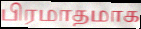
பிரமாதமாக